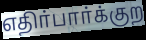
எதிர்பார்க்குற